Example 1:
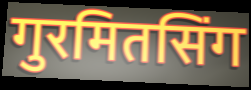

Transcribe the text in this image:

गुरमितसिंग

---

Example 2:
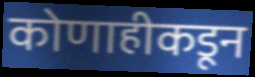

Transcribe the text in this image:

कोणाहीकडून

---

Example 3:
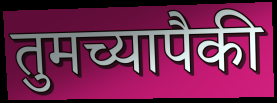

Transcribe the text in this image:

तुमच्यापैकी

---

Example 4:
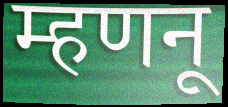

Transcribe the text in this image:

म्हणनू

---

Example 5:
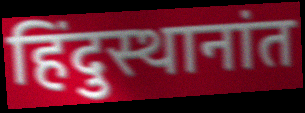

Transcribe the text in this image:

हिंदुस्थानांत